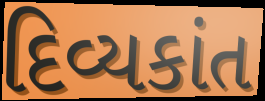
દિવ્યકાંત